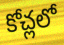
కోచ్లలో